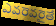
ఎవరెవరైతే